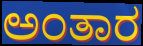
ಅಂತಾರ